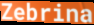
Zebrina